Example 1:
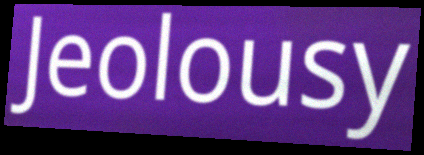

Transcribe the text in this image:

Jeolousy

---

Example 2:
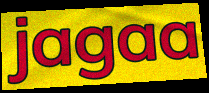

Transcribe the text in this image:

jagaa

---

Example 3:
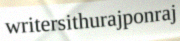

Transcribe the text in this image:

writersithurajponraj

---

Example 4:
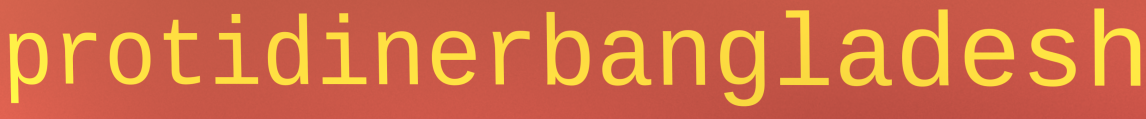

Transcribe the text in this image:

protidinerbangladesh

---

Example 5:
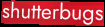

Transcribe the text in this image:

shutterbugs